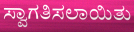
ಸ್ವಾಗತಿಸಲಾಯಿತು